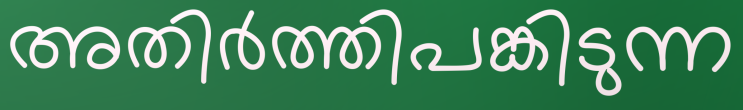
അതിർത്തിപങ്കിടുന്ന